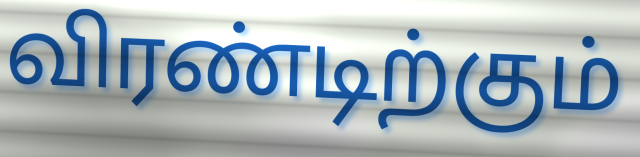
விரண்டிற்கும்